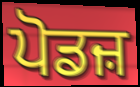
ਪੋਡਜ਼